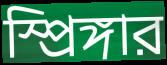
স্প্রিঙ্গার